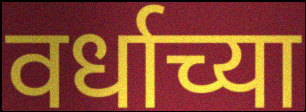
वर्धाच्या